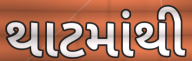
થાટમાંથી